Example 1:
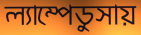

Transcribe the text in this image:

ল্যাম্পেডুসায়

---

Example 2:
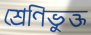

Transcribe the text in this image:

শ্রেণিভুক্ত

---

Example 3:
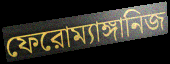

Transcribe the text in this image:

ফেরোম্যাঙ্গানিজ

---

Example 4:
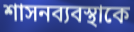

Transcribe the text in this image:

শাসনব্যবস্থাকে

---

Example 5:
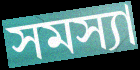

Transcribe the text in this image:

সমস্যা